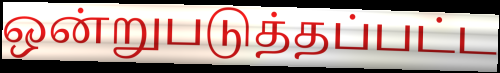
ஒன்றுபடுத்தப்பட்ட